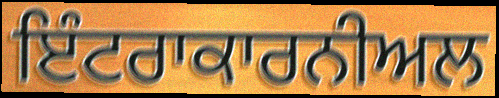
ਇੰਟਰਾਕਾਰਨੀਅਲ